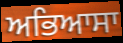
ਅਭਿਆਸਾ